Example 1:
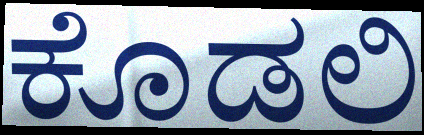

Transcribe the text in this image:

ಕೊಡಲಿ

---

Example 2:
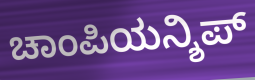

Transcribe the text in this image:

ಚಾಂಪಿಯನ್ಶಿಪ್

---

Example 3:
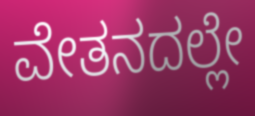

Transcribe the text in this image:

ವೇತನದಲ್ಲೇ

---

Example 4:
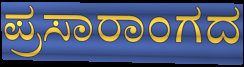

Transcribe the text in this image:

ಪ್ರಸಾರಾಂಗದ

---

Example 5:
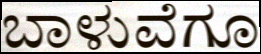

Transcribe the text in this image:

ಬಾಳುವೆಗೂ